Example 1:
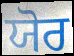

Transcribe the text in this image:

ਯੋਰ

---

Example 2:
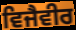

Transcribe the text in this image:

ਵਿਜੈਵੀਰ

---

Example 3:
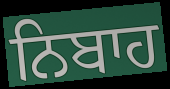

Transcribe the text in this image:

ਨਿਬਾਹ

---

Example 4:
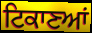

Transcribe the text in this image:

ਟਿਕਾਣਆਂ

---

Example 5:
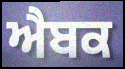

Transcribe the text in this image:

ਐਬਕ